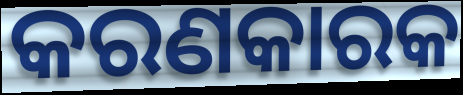
କରଣକାରକ